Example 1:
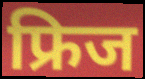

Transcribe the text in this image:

फ्रिज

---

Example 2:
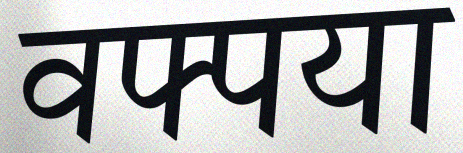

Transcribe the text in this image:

वफ्पया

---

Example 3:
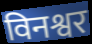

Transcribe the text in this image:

विनश्वर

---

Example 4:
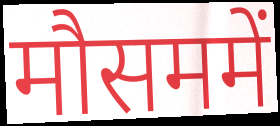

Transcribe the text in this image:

मौसममें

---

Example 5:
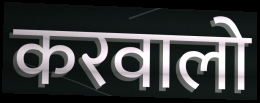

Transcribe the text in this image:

करवालो